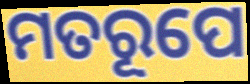
ମତରୂପେ